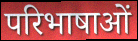
परिभाषाओं